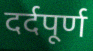
दर्दपूर्ण